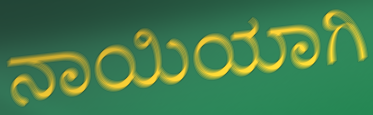
ನಾಯಿಯಾಗಿ